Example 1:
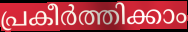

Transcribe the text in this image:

പ്രകീർത്തിക്കാം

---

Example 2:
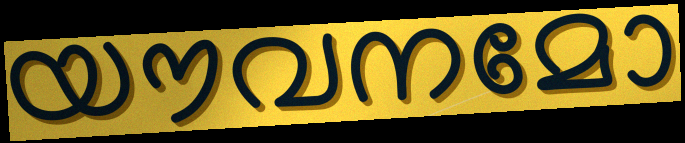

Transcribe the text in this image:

യൗവനമോ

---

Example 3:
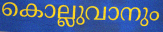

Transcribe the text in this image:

കൊല്ലുവാനും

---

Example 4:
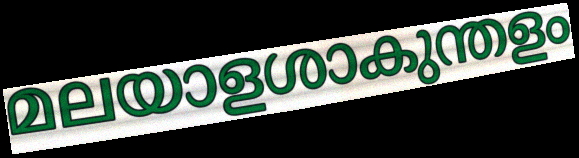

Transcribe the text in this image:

മലയാളശാകുന്തളം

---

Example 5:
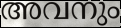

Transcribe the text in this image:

അവനും